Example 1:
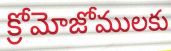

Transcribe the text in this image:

క్రోమోజోములకు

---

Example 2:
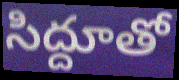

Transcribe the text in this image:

సిద్దూతో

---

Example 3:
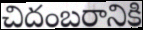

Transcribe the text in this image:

చిదంబరానికి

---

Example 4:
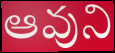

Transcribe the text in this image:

ఆవుని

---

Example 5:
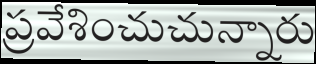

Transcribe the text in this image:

ప్రవేశించుచున్నారు